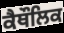
ਕੈਥੌਲਿਕ